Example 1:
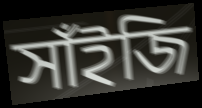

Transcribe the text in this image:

সাঁইজি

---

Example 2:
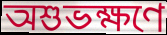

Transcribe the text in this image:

অশুভক্ষণে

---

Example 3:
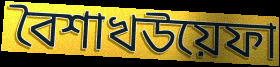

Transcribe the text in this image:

বৈশাখউয়েফা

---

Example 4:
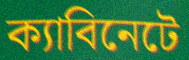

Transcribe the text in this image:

ক্যাবিনেটে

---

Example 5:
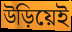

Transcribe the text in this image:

উড়িয়েই